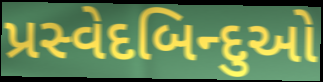
પ્રસ્વેદબિન્દુઓ